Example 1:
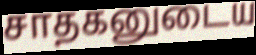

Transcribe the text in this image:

சாதகனுடைய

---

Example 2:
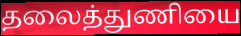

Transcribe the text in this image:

தலைத்துணியை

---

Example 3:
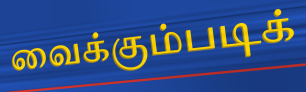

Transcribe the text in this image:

வைக்கும்படிக்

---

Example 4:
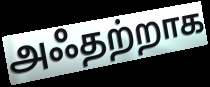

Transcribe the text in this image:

அஃதற்றாக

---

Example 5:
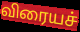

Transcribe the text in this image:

விரையச்